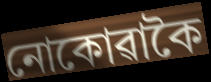
নোকোৱাকৈ